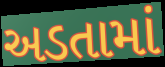
અડતામાં